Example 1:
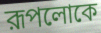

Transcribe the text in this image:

রূপলোকে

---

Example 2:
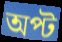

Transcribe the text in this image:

অপ্ট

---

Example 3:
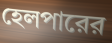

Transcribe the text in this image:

হেলপারের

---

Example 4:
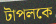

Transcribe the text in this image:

টাপলকে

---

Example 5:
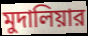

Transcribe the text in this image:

মুদালিয়ার